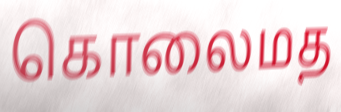
கொலைமத